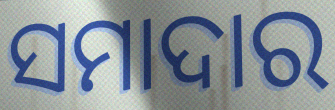
ସମାଦାର